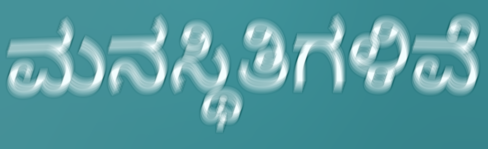
ಮನಸ್ಥಿತಿಗಳಿವೆ